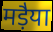
मड़ैया